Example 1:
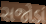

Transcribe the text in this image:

સજોડાં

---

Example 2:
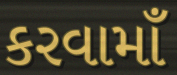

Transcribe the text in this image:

કરવામાઁ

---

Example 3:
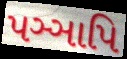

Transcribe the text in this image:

પઞ્ઞાપિ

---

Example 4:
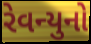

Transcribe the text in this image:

રેવન્યુનો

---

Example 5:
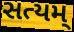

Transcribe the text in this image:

સત્યમ્